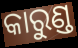
କାରୁଣ୍ଡ